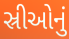
સ્રીઓનું